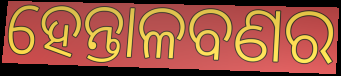
ହେନ୍ତାଳବଣର